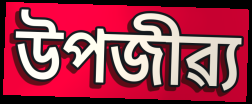
উপজীৱ্য